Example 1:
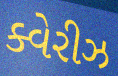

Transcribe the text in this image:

ક્વેરીઝ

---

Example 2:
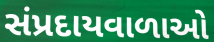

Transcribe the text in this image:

સંપ્રદાયવાળાઓ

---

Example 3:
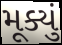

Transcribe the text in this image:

મૂક્યું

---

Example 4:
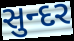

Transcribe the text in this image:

સુન્દર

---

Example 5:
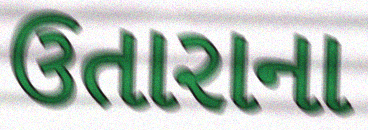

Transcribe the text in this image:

ઉતારાના